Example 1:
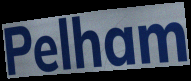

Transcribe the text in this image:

Pelham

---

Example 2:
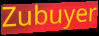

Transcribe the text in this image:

Zubuyer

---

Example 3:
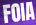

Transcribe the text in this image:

FOIA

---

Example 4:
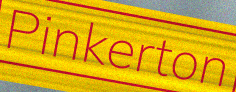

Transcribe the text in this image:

Pinkerton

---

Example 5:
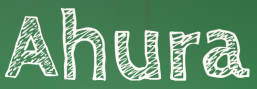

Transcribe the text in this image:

Ahura